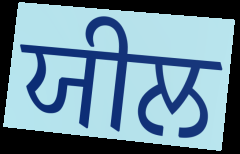
ਯੀਲ